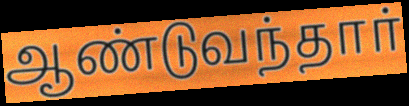
ஆண்டுவந்தார்